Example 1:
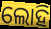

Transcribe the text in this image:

ଲୋହି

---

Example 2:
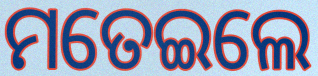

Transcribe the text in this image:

ମତେଇଲେ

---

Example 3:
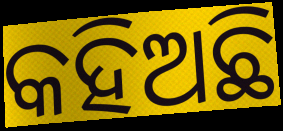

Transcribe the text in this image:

କହିଅଛି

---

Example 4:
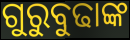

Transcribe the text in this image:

ଗୁରୁବୁଢାଙ୍କ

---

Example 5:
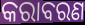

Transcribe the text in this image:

କରାବରଣ